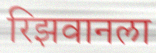
रिझवानला